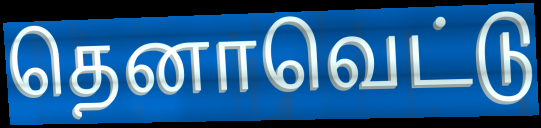
தெனாவெட்டு